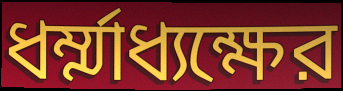
ধর্ম্মাধ্যক্ষের